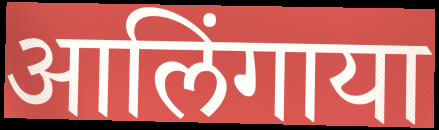
आलिंगाया